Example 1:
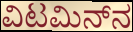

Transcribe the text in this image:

ವಿಟಮಿನ್‌ನ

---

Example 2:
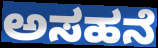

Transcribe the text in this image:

ಅಸಹನೆ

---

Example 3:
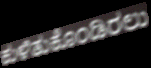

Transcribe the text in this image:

ಕುಳಿತುಕೊಂಡಿರಲು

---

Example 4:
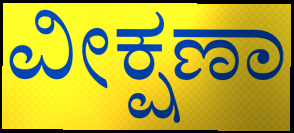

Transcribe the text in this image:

ವೀಕ್ಷಣಾ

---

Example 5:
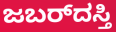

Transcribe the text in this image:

ಜಬರ್‌ದಸ್ತಿ